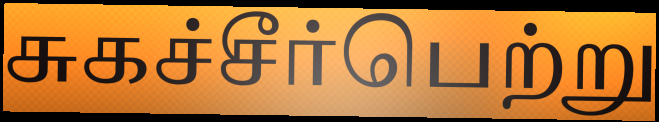
சுகச்சீர்பெற்று